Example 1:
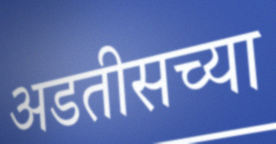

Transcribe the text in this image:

अडतीसच्या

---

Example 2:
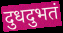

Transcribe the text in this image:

दुधदुभतं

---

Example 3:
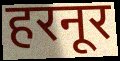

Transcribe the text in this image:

हरनूर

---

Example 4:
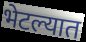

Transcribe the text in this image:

भेटल्यात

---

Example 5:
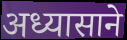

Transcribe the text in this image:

अध्यासाने